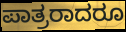
ಪಾತ್ರರಾದರೂ